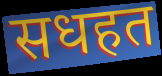
सधहत